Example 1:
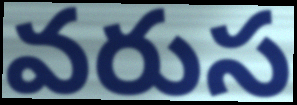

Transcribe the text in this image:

వరుస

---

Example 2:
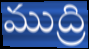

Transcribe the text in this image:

ముద్రి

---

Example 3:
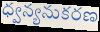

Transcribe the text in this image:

ధ్వన్యనుకరణ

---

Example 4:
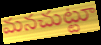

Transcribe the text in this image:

మనచుట్టూ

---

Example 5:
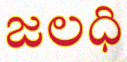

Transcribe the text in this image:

జలధి